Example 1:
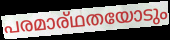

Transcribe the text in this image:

പരമാര്ഥതയോടും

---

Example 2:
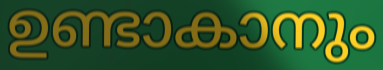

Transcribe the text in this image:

ഉണ്ടാകാനും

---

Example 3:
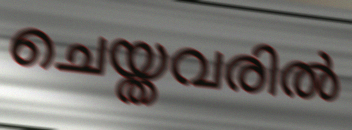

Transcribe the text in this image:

ചെയ്തവരിൽ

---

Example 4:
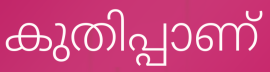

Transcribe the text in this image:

കുതിപ്പാണ്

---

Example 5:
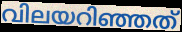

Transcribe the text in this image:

വിലയറിഞ്ഞത്